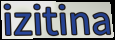
izitina